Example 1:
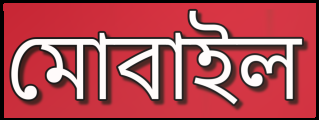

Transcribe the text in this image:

মোবাইল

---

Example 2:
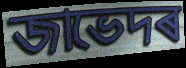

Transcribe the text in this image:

জাভেদৰ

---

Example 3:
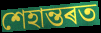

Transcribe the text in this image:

শেহান্তৰত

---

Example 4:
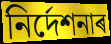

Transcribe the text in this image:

নিৰ্দেশনাৰ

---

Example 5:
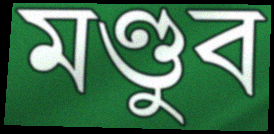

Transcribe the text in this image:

মণ্ডুব